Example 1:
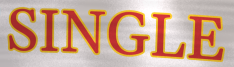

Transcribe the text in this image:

SINGLE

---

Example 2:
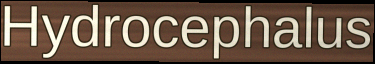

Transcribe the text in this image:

Hydrocephalus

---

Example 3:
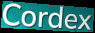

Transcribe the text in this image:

Cordex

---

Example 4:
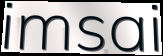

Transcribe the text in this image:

imsai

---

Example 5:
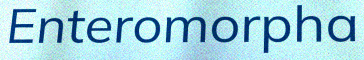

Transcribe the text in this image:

Enteromorpha